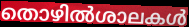
തൊഴിൽശാലകൾ